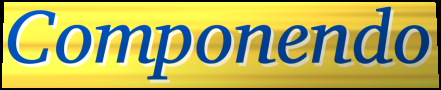
Componendo